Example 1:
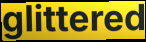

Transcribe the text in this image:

glittered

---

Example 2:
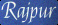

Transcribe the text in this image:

Rajpur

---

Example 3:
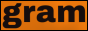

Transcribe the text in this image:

gram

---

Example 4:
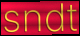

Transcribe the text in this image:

sndt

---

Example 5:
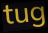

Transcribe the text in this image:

tug